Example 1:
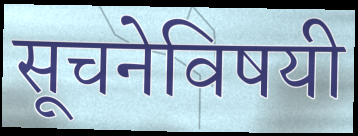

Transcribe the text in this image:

सूचनेविषयी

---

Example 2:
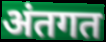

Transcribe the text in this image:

अंतगत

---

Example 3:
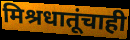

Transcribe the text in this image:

मिश्रधातूंचाही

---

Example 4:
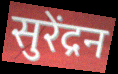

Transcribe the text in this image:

सुरेंद्रन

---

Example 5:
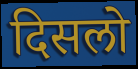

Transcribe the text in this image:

दिसलो